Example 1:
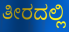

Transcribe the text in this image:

ತೀರದಲ್ಲಿ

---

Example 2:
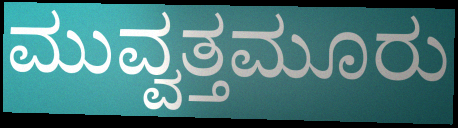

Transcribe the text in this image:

ಮುವ್ವತ್ತಮೂರು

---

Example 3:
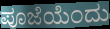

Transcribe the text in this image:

ಪೂಜೆಯೆಂದು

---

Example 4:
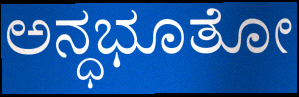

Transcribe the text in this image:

ಅನ್ಧಭೂತೋ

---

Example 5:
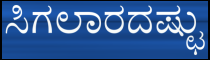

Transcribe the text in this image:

ಸಿಗಲಾರದಷ್ಟು